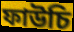
ফাউচি